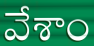
వేశాం